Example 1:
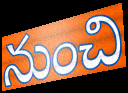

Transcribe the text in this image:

నుంచి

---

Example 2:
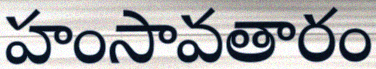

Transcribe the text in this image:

హంసావతారం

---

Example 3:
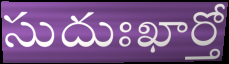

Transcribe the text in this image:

సుదుఃఖార్తో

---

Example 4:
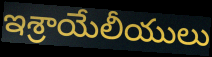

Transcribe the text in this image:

ఇశ్రాయేలీయులు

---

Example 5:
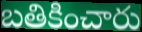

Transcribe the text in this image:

బతికించారు